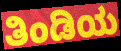
ತಿಂಡಿಯ